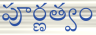
పూర్ణత్వం